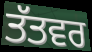
ਤੱਤਵਰ